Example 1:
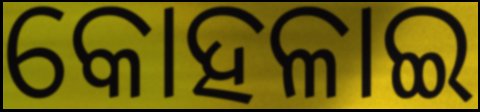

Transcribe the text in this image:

କୋହଳାଇ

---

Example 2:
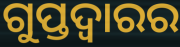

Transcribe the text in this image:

ଗୁପ୍ତଦ୍ୱାରର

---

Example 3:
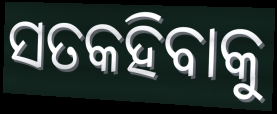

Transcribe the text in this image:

ସତକହିବାକୁ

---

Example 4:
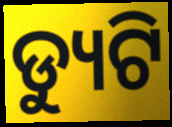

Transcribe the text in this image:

ଡ୍ୟୁଟି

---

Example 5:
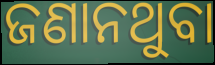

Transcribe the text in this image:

ଜଣାନଥୁବା